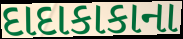
દાદાકાકાના